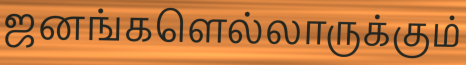
ஜனங்களெல்லாருக்கும்